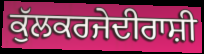
ਕੁੱਲਕਰਜੇਦੀਰਾਸ਼ੀ